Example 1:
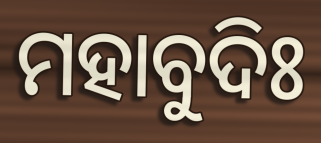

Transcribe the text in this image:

ମହାବୁଦିଃ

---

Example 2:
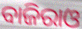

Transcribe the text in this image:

ବାଜିରାଓ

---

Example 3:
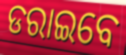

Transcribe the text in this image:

ଡରାଇବେ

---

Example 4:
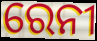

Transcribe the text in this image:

ରେନୀ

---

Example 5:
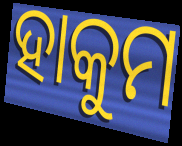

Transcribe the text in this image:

ହାକୁମ